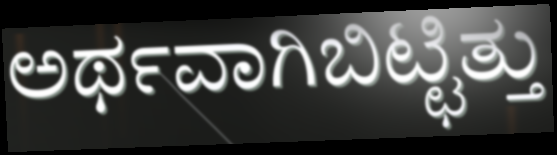
ಅರ್ಥವಾಗಿಬಿಟ್ಟಿತ್ತು